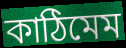
কাঠিমেম